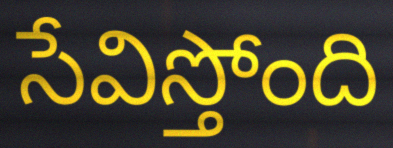
సేవిస్తోంది